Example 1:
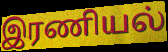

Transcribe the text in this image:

இரணியல்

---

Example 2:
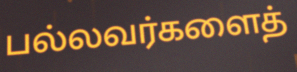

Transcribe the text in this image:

பல்லவர்களைத்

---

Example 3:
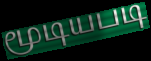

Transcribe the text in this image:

மூடியபடி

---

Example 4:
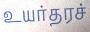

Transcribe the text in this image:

உயர்தரச்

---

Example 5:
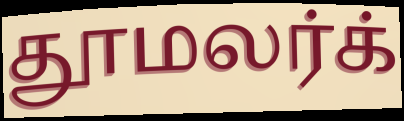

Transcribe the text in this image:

தூமலர்க்